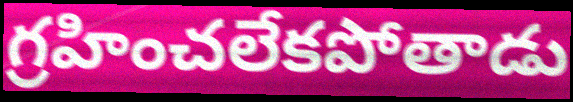
గ్రహించలేకపోతాడు